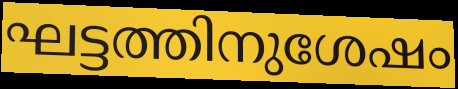
ഘട്ടത്തിനുശേഷം